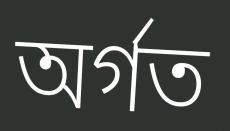
অৰ্গত